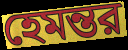
হেমন্তর